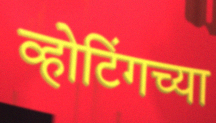
व्होटिंगच्या